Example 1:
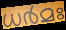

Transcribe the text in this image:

ധർമഃ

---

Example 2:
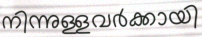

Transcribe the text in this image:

നിന്നുള്ളവർക്കായി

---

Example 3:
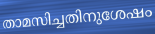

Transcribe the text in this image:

താമസിച്ചതിനുശേഷം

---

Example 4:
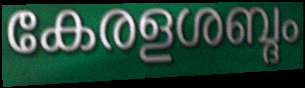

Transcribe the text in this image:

കേരളശബ്ദം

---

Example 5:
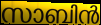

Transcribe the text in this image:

സാബിൻ